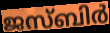
ജസ്ബിർ